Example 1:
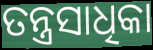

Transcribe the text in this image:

ତନ୍ତ୍ରସାଧିକା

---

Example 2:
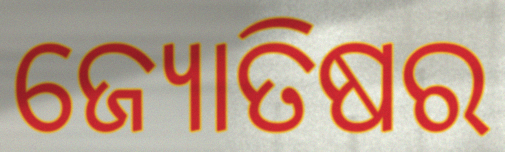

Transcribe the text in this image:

ଜ୍ୟୋତିଷର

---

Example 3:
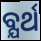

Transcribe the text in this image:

ବ୍ଯର୍ଥ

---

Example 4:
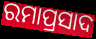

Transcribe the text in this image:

ରମାପ୍ରସାଦ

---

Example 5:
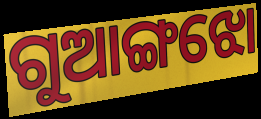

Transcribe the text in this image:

ଗୁଆଙ୍ଗଝୋ